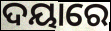
ଦୟାରେ